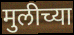
मुलीच्‍या